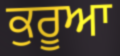
ਕੁਰੂਆ